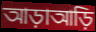
আড়াআড়ি